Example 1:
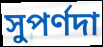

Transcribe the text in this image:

সুপর্ণদা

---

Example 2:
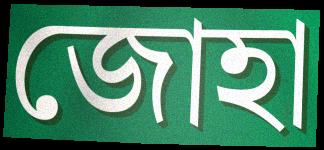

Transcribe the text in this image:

জোহা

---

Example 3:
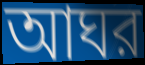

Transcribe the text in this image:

আঘর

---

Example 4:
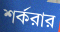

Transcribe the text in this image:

শর্করার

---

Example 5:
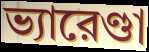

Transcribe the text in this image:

ভ্যারেণ্ডা